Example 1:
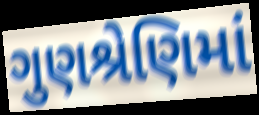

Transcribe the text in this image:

ગુણશ્રેણિમાં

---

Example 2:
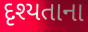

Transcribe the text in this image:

દૃશ્યતાના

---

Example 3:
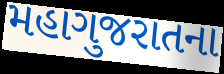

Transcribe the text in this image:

મહાગુજરાતના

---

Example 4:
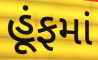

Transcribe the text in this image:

હૂંફમાં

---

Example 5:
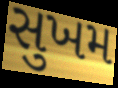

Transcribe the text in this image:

સુખમ